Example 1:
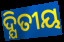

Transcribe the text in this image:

ଦ୍ଯିତୀୟ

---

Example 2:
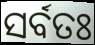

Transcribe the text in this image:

ସର୍ବତଃ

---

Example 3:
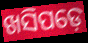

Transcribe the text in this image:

ଖସିପଡ଼େ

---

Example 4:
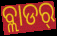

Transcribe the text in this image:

ବ୍ଲାଡର୍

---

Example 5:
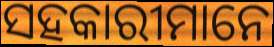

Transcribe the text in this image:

ସହକାରୀମାନେ